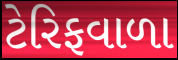
ટેરિફવાળા